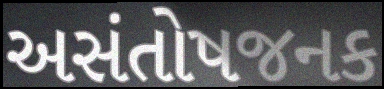
અસંતોષજનક